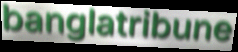
banglatribune